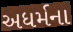
અધર્મના